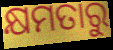
କ୍ଷମତାରୁ